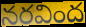
నరవింద